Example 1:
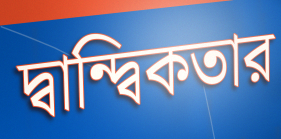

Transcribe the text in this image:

দ্বান্দ্বিকতার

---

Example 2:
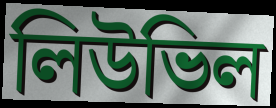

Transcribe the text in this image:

লিউভিল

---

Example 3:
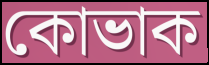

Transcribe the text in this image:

কোভাক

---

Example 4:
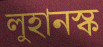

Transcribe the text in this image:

লুহানস্ক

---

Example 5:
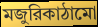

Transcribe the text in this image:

মজুরিকাঠামো